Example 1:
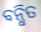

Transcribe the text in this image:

ବନ୍ଧିତ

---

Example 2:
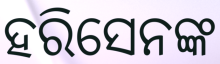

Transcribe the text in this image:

ହରିସେନଙ୍କ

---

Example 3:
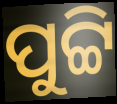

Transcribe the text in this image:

ପୁଟ୍ଟି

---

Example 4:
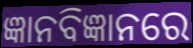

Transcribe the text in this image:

ଜ୍ଞାନବିଜ୍ଞାନରେ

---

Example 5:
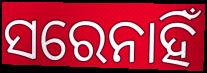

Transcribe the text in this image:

ସରେନାହିଁ